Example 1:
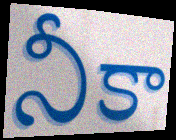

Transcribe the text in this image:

నీకా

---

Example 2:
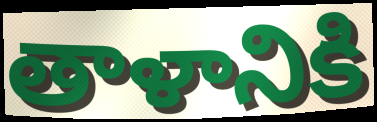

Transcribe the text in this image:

తాళానికి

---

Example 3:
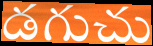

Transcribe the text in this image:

డగుచు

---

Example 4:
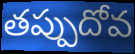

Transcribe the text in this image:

తప్పుదోవ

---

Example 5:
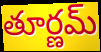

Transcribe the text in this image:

తూర్ణమ్